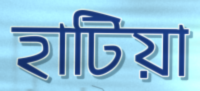
হাটিয়া